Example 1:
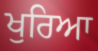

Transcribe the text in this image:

ਖੁਰਿਆ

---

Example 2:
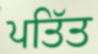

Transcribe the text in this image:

ਪਤਿੱਤ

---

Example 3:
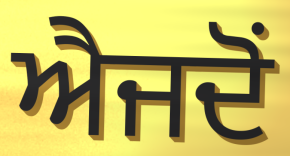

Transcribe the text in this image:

ਐਜਦੋਂ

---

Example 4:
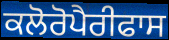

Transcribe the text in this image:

ਕਲੋਰੋਪੈਰੀਫਾਸ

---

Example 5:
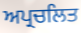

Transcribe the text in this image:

ਅਪ੍ਰਚਲਿਤ